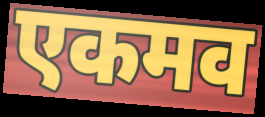
एकमव